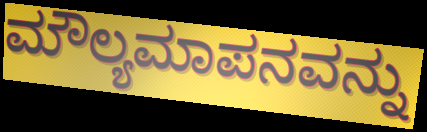
ಮೌಲ್ಯಮಾಪನವನ್ನು